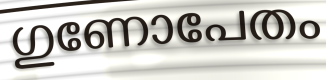
ഗുണോപേതം